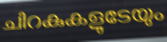
ചിറകുകളുടേയും